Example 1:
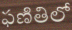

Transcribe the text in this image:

ఫణితిలో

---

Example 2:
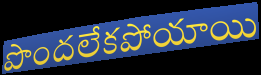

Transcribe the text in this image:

పొందలేకపోయాయి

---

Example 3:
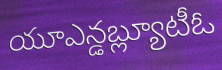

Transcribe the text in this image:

యూఎన్డబ్ల్యూటీఓ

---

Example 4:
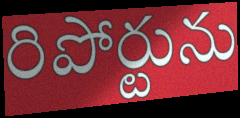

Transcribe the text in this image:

రిపోర్టును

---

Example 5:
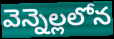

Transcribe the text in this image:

వెన్నెల్లలోన